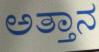
ಅತ್ತಾನ